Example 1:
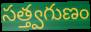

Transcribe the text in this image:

సత్త్వగుణం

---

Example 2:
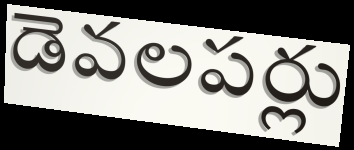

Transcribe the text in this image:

డెవలపర్లు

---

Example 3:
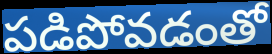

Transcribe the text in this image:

పడిపోవడంతో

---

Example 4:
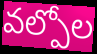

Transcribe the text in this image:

వల్పోల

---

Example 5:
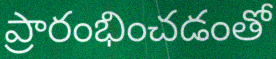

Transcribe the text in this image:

ప్రారంభించడంతో